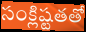
సంక్లిష్టతతో